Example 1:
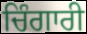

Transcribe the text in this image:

ਚਿੰਗਾਰੀ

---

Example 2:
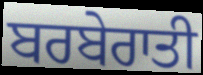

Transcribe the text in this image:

ਬਰਬੇਰਾਤੀ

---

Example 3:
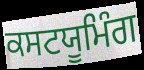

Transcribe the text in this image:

ਕਸਟਯੂਮਿੰਗ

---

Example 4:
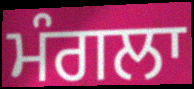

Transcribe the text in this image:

ਮੰਗਲਾ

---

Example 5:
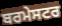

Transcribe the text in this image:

ਬਰਮੇਸਟਰ